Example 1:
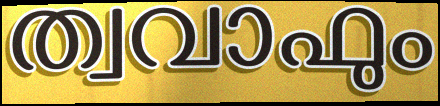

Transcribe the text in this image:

ത്വവാഫും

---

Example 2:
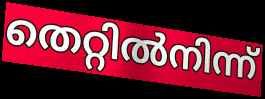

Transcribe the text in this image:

തെറ്റിൽനിന്ന്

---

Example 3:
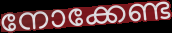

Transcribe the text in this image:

നോക്കേണ്ട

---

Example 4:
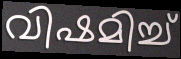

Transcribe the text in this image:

വിഷമിച്ച്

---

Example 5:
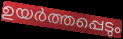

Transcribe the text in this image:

ഉയർത്തപ്പെടും